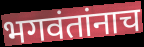
भगवंतांनाच